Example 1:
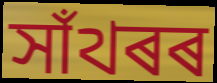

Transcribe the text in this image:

সাঁথৰৰ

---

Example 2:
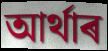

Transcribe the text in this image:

আৰ্থাৰ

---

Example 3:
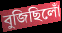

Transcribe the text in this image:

বুজিছিলোঁ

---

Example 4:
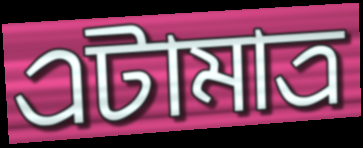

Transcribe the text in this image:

এটামাত্ৰ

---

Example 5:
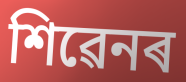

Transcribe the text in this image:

শিৱেনৰ